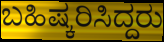
ಬಹಿಷ್ಕರಿಸಿದ್ದರು